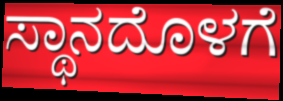
ಸ್ಥಾನದೊಳಗೆ